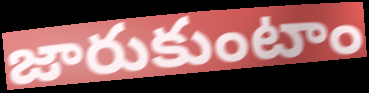
జారుకుంటాం